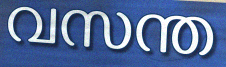
വസന്ത